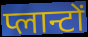
प्लान्टों